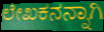
ಲೇಖಕನನ್ನಾಗಿ